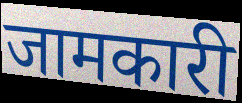
जामकारी